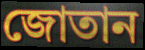
জোতান